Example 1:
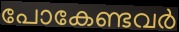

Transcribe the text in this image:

പോകേണ്ടവർ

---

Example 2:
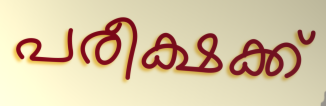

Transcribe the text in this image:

പരീക്ഷക്ക്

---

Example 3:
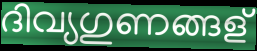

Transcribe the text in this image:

ദിവ്യഗുണങ്ങള്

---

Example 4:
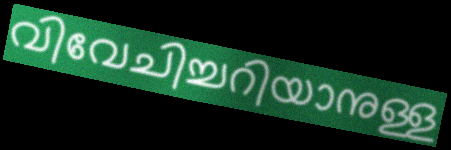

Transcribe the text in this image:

വിവേചിച്ചറിയാനുള്ള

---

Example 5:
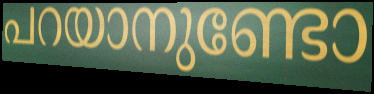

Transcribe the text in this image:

പറയാനുണ്ടോ